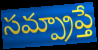
సమ్ప్రాప్తే